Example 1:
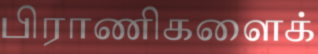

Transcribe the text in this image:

பிராணிகளைக்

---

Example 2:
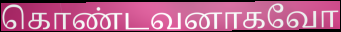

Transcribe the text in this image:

கொண்டவனாகவோ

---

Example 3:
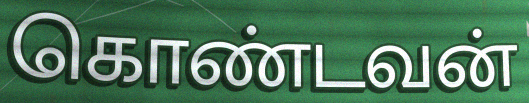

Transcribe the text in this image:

கொண்டவன்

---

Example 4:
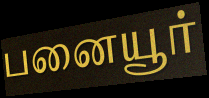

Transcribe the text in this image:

பனையூர்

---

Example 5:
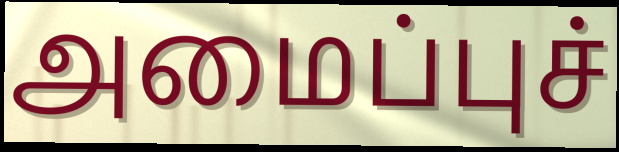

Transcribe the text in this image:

அமைப்புச்